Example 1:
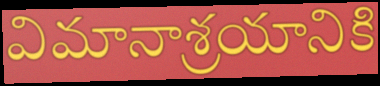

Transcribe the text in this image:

విమానాశ్రయానికి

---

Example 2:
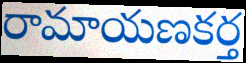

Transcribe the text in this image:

రామాయణకర్త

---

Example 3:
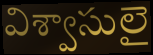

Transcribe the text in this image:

విశ్వాసులై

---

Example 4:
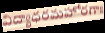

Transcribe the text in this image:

విద్యాధరమహోరగాః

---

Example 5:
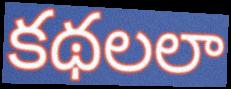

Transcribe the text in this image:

కథలలా